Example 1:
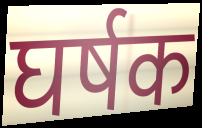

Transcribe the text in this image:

घर्षक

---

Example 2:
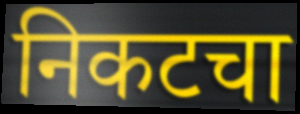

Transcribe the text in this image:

निकटचा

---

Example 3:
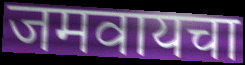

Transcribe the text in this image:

जमवायचा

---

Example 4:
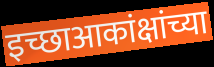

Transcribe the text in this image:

इच्छाआकांक्षांच्या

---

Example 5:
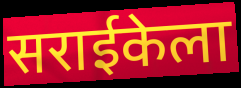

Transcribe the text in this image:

सराईकेला